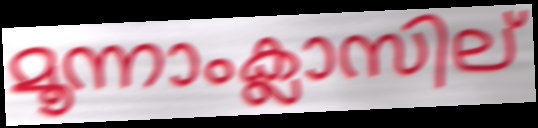
മൂന്നാംക്ലാസില്